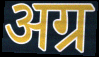
अग्र